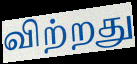
விற்றது